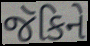
જૅકિને